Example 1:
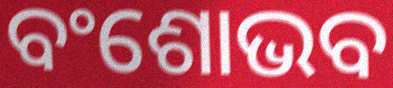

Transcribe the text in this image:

ବଂଶୋଭବ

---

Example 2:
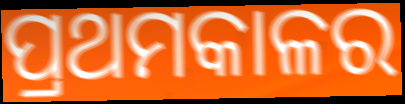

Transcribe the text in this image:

ପ୍ରଥମକାଳର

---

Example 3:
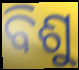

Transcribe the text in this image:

ବିଶୁ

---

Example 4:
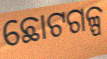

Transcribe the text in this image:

ଛୋଟଗଳ୍ପ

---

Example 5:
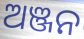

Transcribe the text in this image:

ଅଞ୍ଜନ